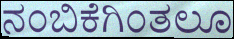
ನಂಬಿಕೆಗಿಂತಲೂ